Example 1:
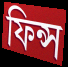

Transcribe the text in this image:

ফিন্স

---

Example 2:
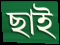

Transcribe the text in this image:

ছাই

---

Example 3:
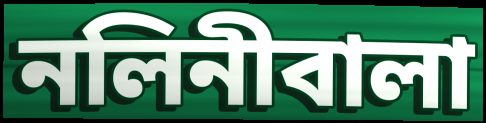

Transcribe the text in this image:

নলিনীবালা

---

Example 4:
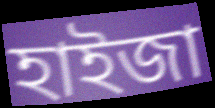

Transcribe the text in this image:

হাইজা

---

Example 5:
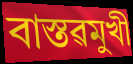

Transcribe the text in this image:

বাস্তৱমুখী